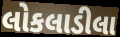
લોકલાડીલા